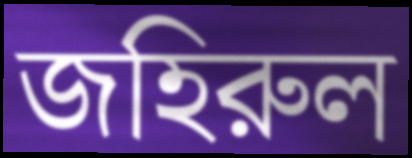
জহিরুল